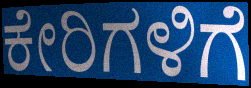
ಕೇರಿಗಳಿಗೆ